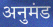
अनुमंड